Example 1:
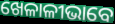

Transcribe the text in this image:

ଖେଳାଳୀଭାବେ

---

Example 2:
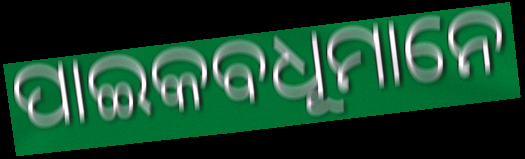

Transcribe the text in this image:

ପାଇକବଧୂମାନେ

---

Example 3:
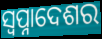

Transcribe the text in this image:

ସ୍ଵପ୍ନାଦେଶର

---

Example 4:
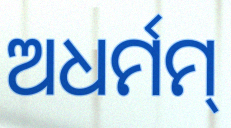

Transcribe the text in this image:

ଅଧର୍ମମ୍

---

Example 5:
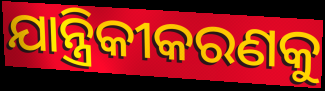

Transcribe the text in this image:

ଯାନ୍ତ୍ରିକୀକରଣକୁ